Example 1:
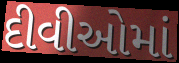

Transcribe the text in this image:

દીવીઓમાં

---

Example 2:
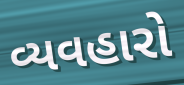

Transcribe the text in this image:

વ્યવહારો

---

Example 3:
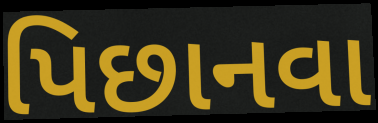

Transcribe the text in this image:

પિછાનવા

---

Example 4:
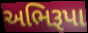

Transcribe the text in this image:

અભિરૂપા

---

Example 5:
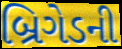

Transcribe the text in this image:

બ્રિગેડની